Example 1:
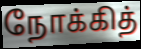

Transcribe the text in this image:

நோக்கித்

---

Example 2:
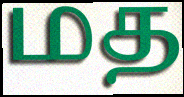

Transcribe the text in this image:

மத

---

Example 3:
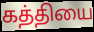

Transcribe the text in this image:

கத்தியை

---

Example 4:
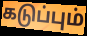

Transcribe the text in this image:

கடுப்பும்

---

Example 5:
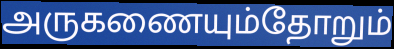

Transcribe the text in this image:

அருகணையும்தோறும்